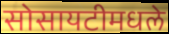
सोसायटीमधले